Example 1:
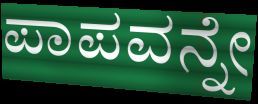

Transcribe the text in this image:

ಪಾಪವನ್ನೇ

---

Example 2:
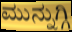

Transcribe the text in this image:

ಮುನ್ನುಗ್ಗಿ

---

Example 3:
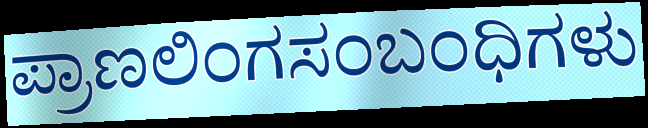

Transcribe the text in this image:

ಪ್ರಾಣಲಿಂಗಸಂಬಂಧಿಗಳು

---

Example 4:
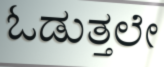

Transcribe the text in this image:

ಓಡುತ್ತಲೇ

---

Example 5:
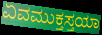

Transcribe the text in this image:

ಏವಮುಕ್ತಸ್ತಯಾ